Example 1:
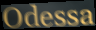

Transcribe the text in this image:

Odessa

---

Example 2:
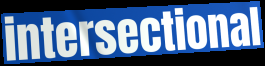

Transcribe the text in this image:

intersectional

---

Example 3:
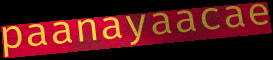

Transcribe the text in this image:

paanayaacae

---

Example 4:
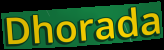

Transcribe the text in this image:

Dhorada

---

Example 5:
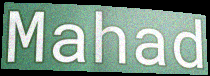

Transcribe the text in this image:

Mahad